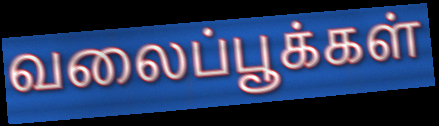
வலைப்பூக்கள்